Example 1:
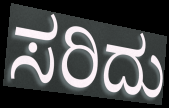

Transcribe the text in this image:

ಸರಿದು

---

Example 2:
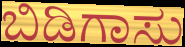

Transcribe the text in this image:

ಬಿಡಿಗಾಸು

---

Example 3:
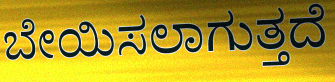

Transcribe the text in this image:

ಬೇಯಿಸಲಾಗುತ್ತದೆ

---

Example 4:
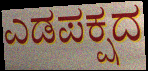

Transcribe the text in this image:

ಎಡಪಕ್ಷದ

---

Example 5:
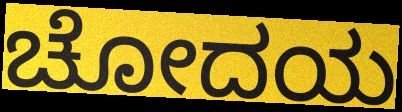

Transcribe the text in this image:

ಚೋದಯ